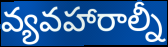
వ్యవహారాల్నీ